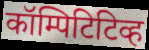
कॉम्पिटिटिव्ह